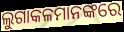
ଲୁଗାକଳମାନଙ୍କରେ